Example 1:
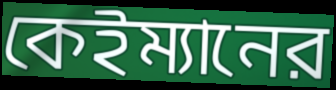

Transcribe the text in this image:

কেইম্যানের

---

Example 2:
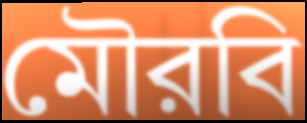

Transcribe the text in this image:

মৌরবি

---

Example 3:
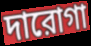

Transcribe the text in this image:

দারোগা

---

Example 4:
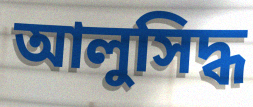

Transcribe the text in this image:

আলুসিদ্ধ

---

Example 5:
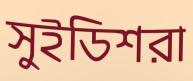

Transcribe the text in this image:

সুইডিশরা